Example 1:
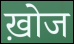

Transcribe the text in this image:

ख़ोज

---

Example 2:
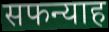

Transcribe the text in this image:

सफन्याह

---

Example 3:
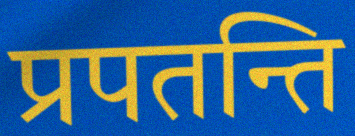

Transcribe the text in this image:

प्रपतन्ति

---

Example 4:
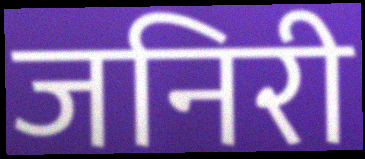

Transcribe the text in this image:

जनिरी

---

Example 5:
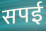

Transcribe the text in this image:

सपई